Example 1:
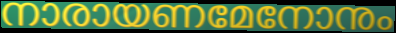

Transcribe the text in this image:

നാരായണമേനോനും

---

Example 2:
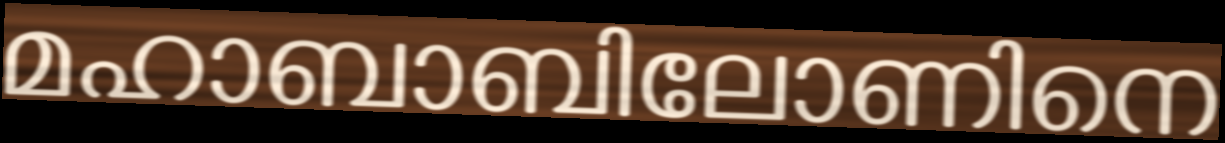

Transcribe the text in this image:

മഹാബാബിലോണിനെ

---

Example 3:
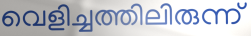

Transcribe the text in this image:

വെളിച്ചത്തിലിരുന്ന്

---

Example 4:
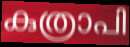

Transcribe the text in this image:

കുത്രാപി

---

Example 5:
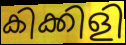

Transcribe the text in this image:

കിക്കിളി